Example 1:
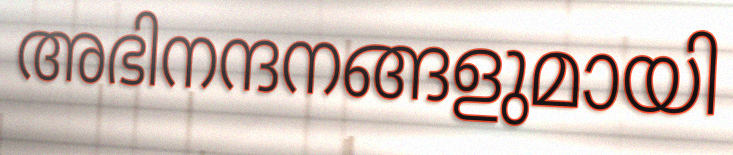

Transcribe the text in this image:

അഭിനന്ദനങ്ങളുമായി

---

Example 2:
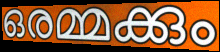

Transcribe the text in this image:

ഒരമ്മക്കും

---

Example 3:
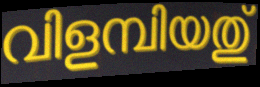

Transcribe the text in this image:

വിളമ്പിയതു്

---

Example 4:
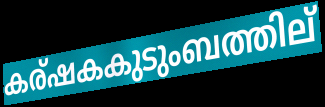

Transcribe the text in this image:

കര്ഷകകുടുംബത്തില്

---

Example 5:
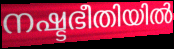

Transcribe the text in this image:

നഷ്ടഭീതിയിൽ